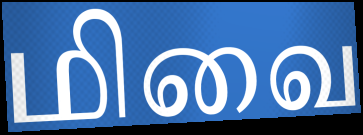
மிவை